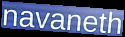
navaneth